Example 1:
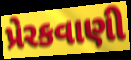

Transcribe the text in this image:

પ્રેરકવાણી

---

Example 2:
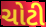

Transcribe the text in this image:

ચોટી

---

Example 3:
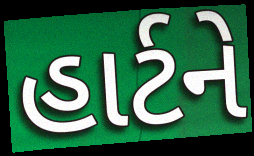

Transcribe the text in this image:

હાર્ટને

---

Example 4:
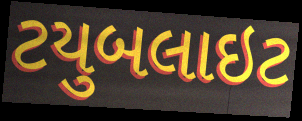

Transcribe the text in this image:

ટયુબલાઇટ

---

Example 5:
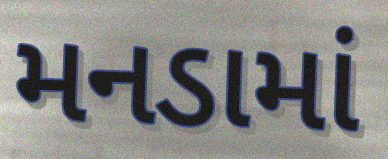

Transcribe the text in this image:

મનડામાં